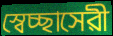
স্বেচ্ছাসেৱী